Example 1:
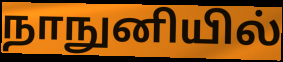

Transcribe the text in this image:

நாநுனியில்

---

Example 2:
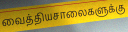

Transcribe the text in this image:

வைத்தியசாலைகளுக்கு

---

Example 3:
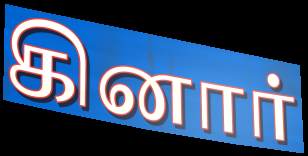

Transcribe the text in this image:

கினார்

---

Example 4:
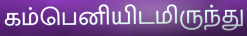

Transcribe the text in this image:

கம்பெனியிடமிருந்து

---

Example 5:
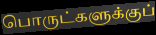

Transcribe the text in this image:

பொருட்களுக்குப்